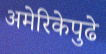
अमेरिकेपुढे